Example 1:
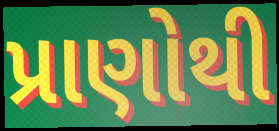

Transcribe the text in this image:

પ્રાણોથી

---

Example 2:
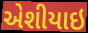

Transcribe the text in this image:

એશીયાઇ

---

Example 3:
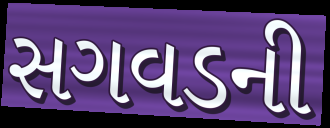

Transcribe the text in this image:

સગવડની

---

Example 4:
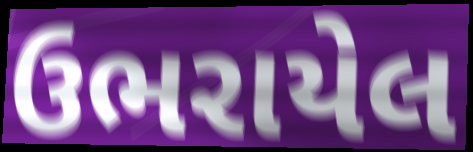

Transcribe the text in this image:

ઉભરાયેલ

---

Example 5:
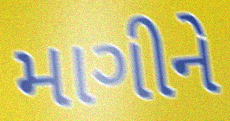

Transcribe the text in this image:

માગીને